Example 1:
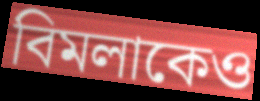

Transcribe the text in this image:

বিমলাকেও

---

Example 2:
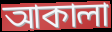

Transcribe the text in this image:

আকালা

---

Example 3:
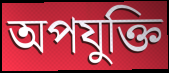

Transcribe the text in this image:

অপযুক্তি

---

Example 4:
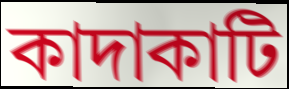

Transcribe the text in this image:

কাদাকাটি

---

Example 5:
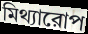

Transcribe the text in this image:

মিথ্যারোপ